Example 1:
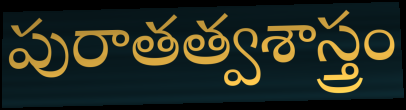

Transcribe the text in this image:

పురాతత్వశాస్త్రం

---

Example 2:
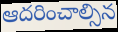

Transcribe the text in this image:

ఆదరించాల్సిన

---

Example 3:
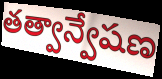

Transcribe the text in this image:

తత్వాన్వేషణ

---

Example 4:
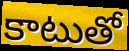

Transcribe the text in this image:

కాటుతో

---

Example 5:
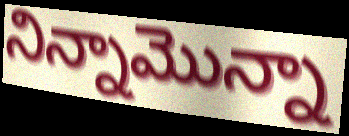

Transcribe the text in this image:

నిన్నామొన్నా